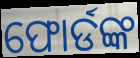
ଫୋର୍ଡଙ୍କ